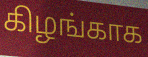
கிழங்காக